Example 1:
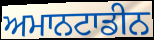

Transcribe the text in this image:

ਅਮਾਨਟਾਡੀਨ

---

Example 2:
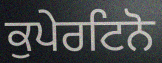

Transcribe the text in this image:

ਕੁਪੇਰਟਿਨੋ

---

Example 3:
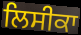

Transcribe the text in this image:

ਲਿਸੀਕਾ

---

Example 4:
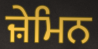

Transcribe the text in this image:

ਜ਼ੇਮਿਨ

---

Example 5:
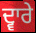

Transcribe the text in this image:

ਦ੍ਵਾਰੇ